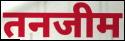
तनजीम